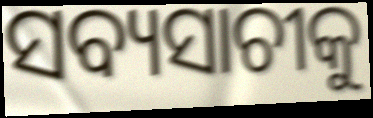
ସବ୍ୟସାଚୀକୁ